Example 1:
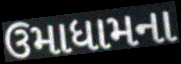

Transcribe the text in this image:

ઉમાધામના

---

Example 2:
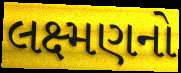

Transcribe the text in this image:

લક્ષ્મણનો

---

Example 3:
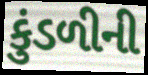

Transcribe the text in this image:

કુંડળીની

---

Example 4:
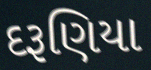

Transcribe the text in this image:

દરૂણિયા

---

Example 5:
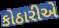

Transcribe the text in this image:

કોઠારીએ